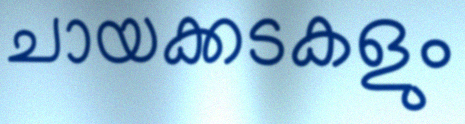
ചായക്കടകളും